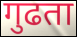
गुढता